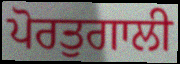
ਪੋਰਤੁਗਾਲੀ